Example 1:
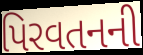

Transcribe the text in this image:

પિરવતનની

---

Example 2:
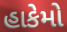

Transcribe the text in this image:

હાકેમો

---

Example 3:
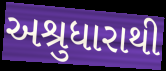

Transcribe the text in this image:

અશ્રુધારાથી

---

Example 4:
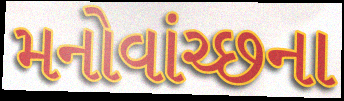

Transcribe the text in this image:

મનોવાંચ્છના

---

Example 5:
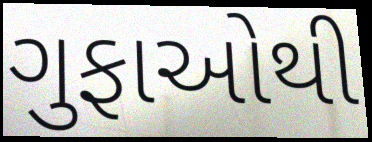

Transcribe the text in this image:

ગુફાઓથી